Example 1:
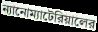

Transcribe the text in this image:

ন্যানোম্যাটেরিয়ালের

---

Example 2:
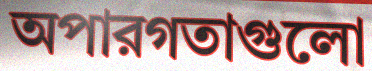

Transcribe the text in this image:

অপারগতাগুলো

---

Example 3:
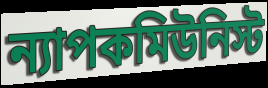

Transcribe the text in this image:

ন্যাপকমিউনিস্ট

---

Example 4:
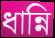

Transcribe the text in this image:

ধান্নি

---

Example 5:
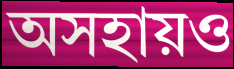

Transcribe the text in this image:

অসহায়ও